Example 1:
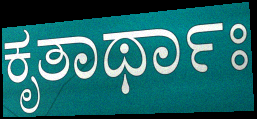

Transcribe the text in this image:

ಕೃತಾರ್ಥಾಃ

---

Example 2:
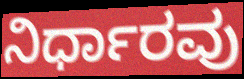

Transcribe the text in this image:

ನಿರ್ಧಾರವು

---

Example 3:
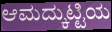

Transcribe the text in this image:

ಆಮದ್ಕುಟ್ಟಿಯ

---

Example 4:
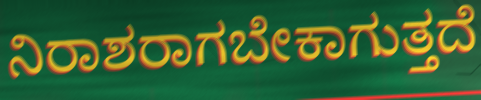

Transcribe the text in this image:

ನಿರಾಶರಾಗಬೇಕಾಗುತ್ತದೆ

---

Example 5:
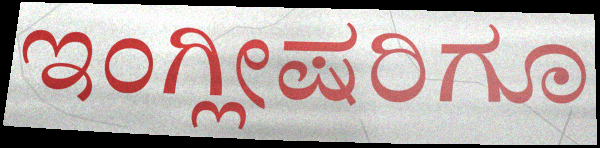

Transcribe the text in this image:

ಇಂಗ್ಲೀಷರಿಗೂ